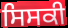
ਸਿਸਕੀ